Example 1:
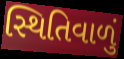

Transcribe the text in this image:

સ્થિતિવાળું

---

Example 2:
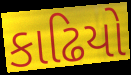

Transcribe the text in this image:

કાઢિયો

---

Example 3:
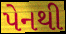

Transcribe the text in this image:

પેનથી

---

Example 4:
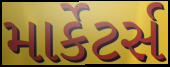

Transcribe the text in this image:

માર્કેટર્સ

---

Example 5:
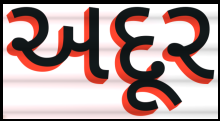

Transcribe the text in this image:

અદૂર